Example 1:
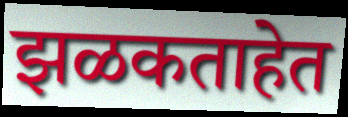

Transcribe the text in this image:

झळकताहेत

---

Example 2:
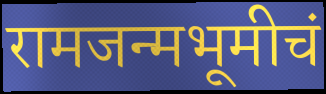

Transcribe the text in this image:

रामजन्मभूमीचं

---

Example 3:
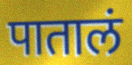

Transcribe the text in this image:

पातालं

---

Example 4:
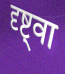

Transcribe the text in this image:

दृष्ट्‍वा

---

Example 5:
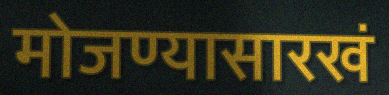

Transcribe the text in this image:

मोजण्यासारखं